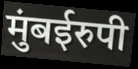
मुंबईरुपी